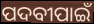
ପଦବୀପାଇଁ